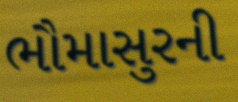
ભૌમાસુરની